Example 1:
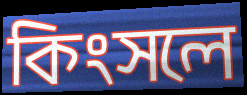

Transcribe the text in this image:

কিংসলে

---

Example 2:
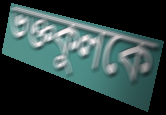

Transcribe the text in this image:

ভক্তকুলকে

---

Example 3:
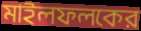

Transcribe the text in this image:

মাইলফলকের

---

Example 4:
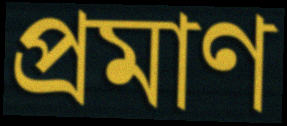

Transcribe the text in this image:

প্রমাণ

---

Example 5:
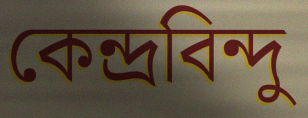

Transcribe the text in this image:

কেন্দ্রবিন্দু